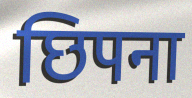
छिपना